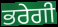
ਭਰੇਗੀ